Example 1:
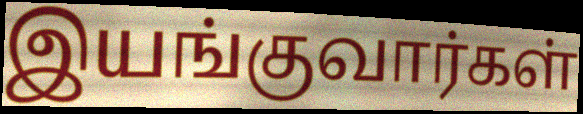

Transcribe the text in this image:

இயங்குவார்கள்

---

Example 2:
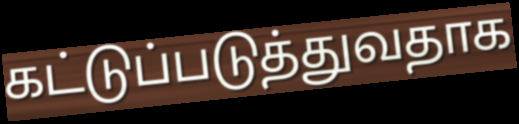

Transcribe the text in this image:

கட்டுப்படுத்துவதாக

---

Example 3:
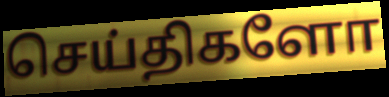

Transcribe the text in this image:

செய்திகளோ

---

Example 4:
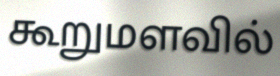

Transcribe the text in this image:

கூறுமளவில்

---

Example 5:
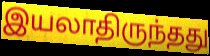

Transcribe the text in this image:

இயலாதிருந்தது